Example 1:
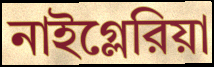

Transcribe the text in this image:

নাইগ্লেরিয়া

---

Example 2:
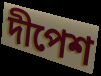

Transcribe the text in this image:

দীপেশ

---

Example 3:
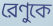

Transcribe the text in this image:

রেণুকে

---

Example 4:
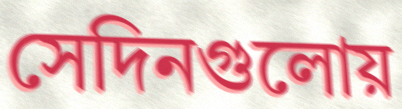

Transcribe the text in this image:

সেদিনগুলোয়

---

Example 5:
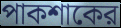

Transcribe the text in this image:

পাকশাকের